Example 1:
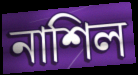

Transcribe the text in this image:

নাশিল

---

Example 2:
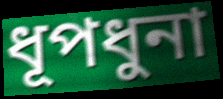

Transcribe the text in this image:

ধূপধুনা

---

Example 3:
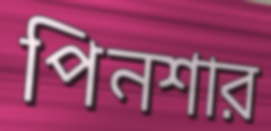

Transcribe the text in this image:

পিনশার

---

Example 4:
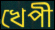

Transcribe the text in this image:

খেপী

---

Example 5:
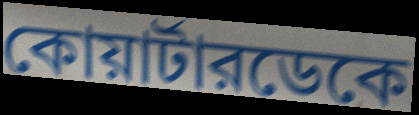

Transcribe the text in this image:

কোয়ার্টারডেকে